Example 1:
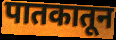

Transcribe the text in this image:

पातकातून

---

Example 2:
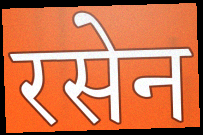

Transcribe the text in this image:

रसेन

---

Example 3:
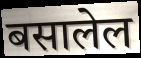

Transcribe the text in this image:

बसालेल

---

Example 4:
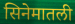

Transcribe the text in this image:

सिनेमातली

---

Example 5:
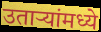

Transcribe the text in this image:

उतार्‍यांमध्ये